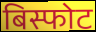
बिस्फोट